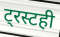
ट्रस्टही